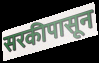
सरकीपासून